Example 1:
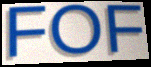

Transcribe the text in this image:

FOF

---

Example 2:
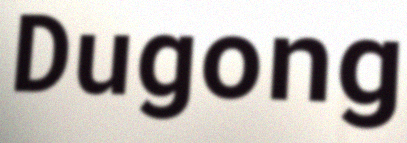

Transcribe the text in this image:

Dugong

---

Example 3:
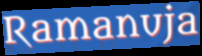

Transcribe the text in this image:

Ramanuja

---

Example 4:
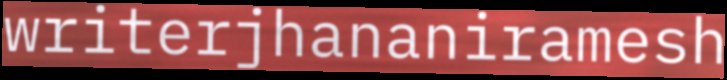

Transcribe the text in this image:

writerjhananiramesh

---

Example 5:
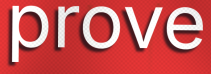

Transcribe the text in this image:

prove